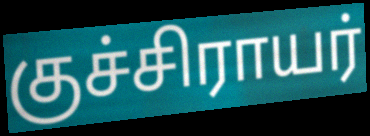
குச்சிராயர்